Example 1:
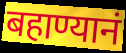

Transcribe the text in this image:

बहाण्यानं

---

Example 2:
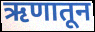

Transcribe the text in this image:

ऋणातून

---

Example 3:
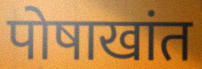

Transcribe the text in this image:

पोषाखांत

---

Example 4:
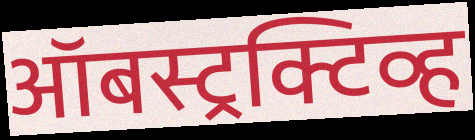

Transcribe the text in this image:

ऑबस्ट्रक्टिव्ह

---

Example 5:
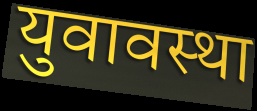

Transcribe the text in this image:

युवावस्था